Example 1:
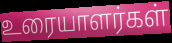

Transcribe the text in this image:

உரையாளர்கள்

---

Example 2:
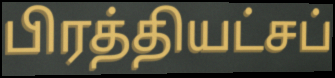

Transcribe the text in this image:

பிரத்தியட்சப்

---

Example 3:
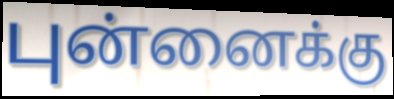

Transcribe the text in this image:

புன்னைக்கு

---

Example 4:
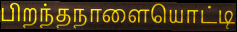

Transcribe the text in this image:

பிறந்தநாளையொட்டி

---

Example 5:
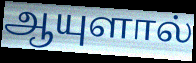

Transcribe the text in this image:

ஆயுளால்